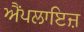
ਐਂਪਲਾਇਜ਼